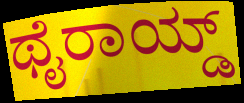
ಥೈರಾಯ್ಡ್